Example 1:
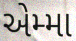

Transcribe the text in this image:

એમ્મા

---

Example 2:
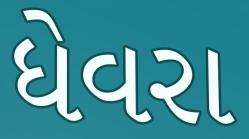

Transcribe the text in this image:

ધેવરા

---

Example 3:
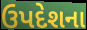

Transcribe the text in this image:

ઉપદેશના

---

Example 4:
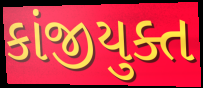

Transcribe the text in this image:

કાંજીયુક્ત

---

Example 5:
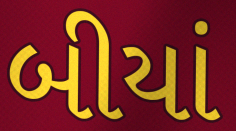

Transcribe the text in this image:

બીયાં